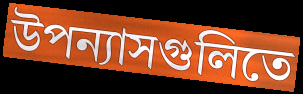
উপন্যাসগুলিতে